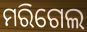
ମରିଗେଲ